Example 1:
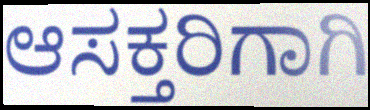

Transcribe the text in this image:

ಆಸಕ್ತರಿಗಾಗಿ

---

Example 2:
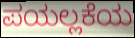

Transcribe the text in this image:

ಪಯಲ್ಲಕೆಯ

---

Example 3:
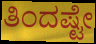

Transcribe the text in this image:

ತಿಂದಷ್ಟೇ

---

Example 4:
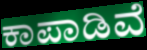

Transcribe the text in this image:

ಕಾಪಾಡಿವೆ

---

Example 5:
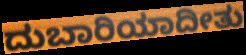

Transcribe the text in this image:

ದುಬಾರಿಯಾದೀತು